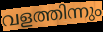
വളത്തിന്നും